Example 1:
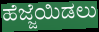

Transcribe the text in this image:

ಹೆಜ್ಜೆಯಿಡಲು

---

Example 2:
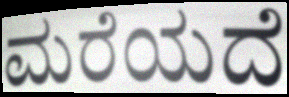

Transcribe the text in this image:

ಮರೆಯದೆ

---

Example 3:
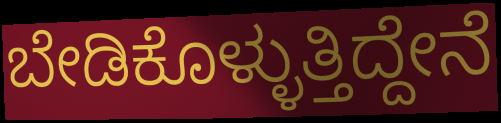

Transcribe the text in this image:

ಬೇಡಿಕೊಳ್ಳುತ್ತಿದ್ದೇನೆ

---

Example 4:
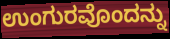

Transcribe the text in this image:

ಉಂಗುರವೊಂದನ್ನು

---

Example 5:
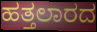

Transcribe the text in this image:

ಹತ್ತಲಾರದ